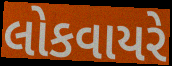
લોકવાયરે